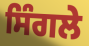
ਸਿੰਗਲੇ